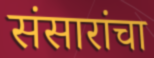
संसारांचा